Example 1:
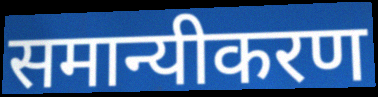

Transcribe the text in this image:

समान्यीकरण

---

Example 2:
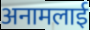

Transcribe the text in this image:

अनामलाई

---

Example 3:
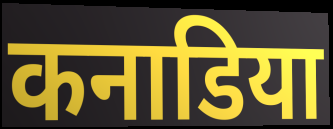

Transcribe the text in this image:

कनाडिया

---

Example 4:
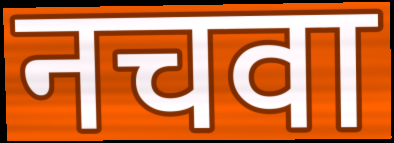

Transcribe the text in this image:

नचवा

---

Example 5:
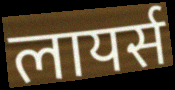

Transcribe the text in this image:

लायर्स